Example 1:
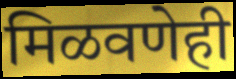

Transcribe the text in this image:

मिळवणेही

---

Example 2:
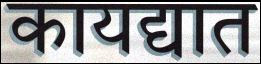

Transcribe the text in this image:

कायद्यात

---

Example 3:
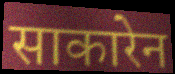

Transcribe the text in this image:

साकारेन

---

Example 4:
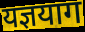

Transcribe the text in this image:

यज्ञयाग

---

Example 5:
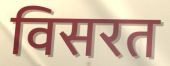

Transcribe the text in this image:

विसरत